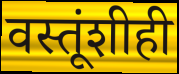
वस्तूंशीही